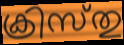
ക്രിസ്‌തു